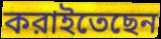
করাইতেছেন